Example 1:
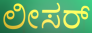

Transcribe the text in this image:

ಲೀಸರ್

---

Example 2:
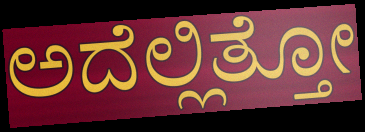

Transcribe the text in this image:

ಅದೆಲ್ಲಿತ್ತೋ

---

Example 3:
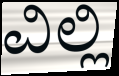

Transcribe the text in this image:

ವಿಲ್ಲಿ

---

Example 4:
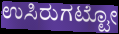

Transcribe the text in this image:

ಉಸಿರುಗಟ್ಟೋ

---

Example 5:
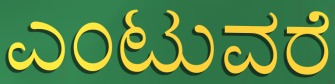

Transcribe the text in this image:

ಎಂಟುವರೆ